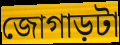
জোগাড়টা